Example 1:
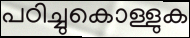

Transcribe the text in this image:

പഠിച്ചുകൊള്ളുക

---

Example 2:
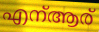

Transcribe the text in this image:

എന്ആര്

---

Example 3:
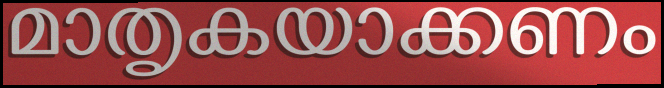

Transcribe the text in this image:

മാതൃകയാക്കണം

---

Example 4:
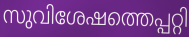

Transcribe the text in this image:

സുവിശേഷത്തെപ്പറ്റി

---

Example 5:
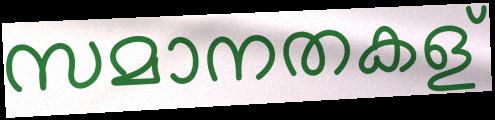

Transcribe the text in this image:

സമാനതകള്